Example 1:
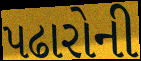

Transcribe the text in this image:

પઢારોની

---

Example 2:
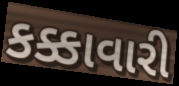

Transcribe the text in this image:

કક્કાવારી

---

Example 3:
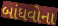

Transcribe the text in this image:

બાંધવોના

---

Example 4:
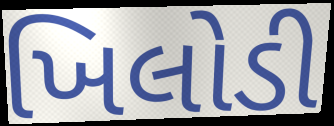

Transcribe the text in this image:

ખિલોડી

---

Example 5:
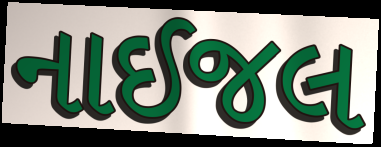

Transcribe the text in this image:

નાઈજલ